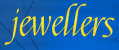
jewellers